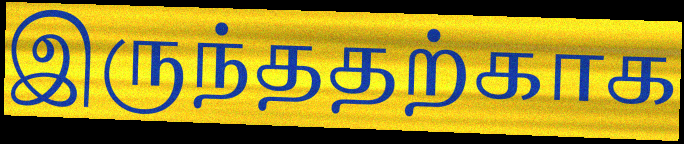
இருந்ததற்காக